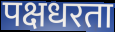
पक्षधरता